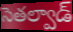
సెతల్వాడ్